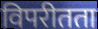
विपरीतता